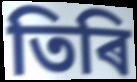
তিৰি